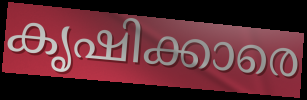
കൃഷിക്കാരെ